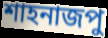
শাহনাজপু